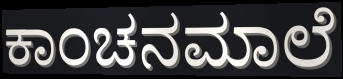
ಕಾಂಚನಮಾಲೆ